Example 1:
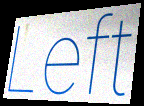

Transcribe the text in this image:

Left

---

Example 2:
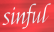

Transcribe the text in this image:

sinful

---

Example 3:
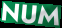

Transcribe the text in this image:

NUM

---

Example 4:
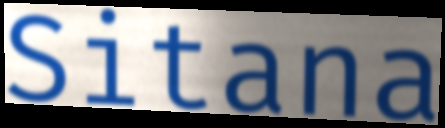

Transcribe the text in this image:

Sitana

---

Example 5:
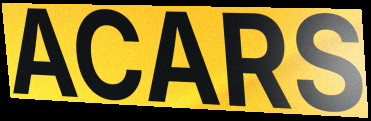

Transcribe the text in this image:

ACARS